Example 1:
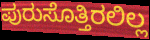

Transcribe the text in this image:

ಪುರುಸೊತ್ತಿರಲಿಲ್ಲ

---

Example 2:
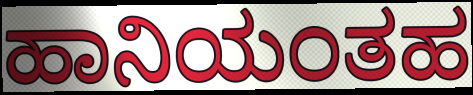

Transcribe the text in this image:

ಹಾನಿಯಂತಹ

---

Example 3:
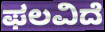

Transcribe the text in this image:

ಫಲವಿದೆ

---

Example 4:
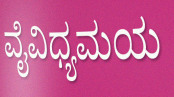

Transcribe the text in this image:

ವೈವಿಧ್ಯಮಯ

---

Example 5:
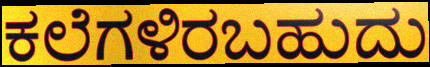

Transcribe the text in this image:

ಕಲೆಗಳಿರಬಹುದು